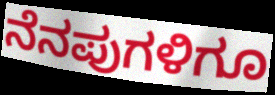
ನೆನಪುಗಳಿಗೂ